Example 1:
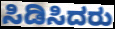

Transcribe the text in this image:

ಸಿಡಿಸಿದರು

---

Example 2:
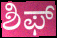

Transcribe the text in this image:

ಶಿಫ್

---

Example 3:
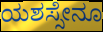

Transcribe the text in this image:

ಯಶಸ್ಸೇನೂ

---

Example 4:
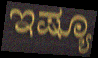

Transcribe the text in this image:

ಇಷ್ಯೂ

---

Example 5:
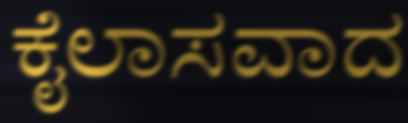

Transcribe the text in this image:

ಕೈಲಾಸವಾದ